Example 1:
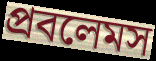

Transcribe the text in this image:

প্রবলেমস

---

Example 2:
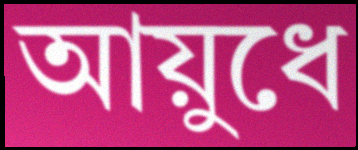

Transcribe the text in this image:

আয়ুধে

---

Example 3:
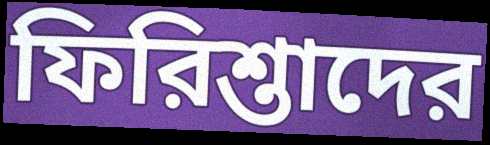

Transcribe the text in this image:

ফিরিশ্তাদের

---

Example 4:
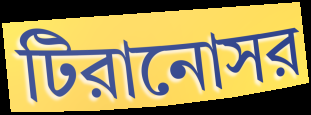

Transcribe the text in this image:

টিরানোসর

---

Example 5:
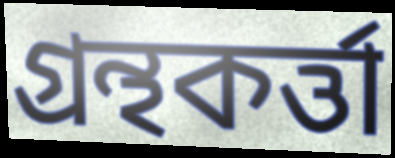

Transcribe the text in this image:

গ্রন্থকর্ত্তা